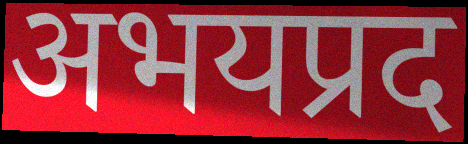
अभयप्रद